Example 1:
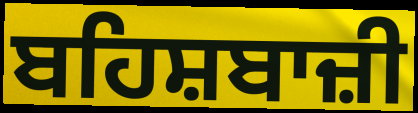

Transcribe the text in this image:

ਬਹਿਸ਼ਬਾਜ਼ੀ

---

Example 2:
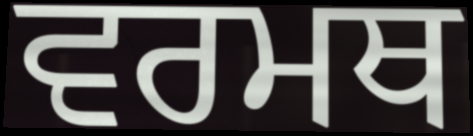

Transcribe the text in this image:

ਵਰਮਥ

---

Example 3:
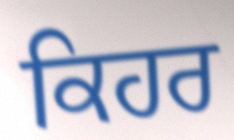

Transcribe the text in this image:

ਕਿਹਰ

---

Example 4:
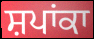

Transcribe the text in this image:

ਸ਼ਪਾਂਕਾ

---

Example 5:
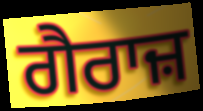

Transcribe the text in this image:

ਗੈਰਾਜ਼